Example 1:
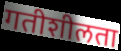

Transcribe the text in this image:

गतीशीलता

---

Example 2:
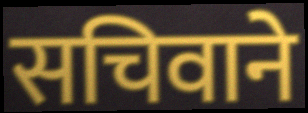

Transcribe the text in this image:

सचिवाने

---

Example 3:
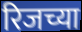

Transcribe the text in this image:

रिजच्या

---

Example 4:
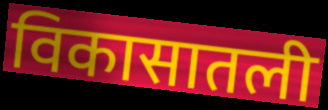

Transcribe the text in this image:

विकासातली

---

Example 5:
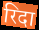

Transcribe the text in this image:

रिदा